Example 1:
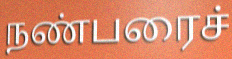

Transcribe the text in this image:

நண்பரைச்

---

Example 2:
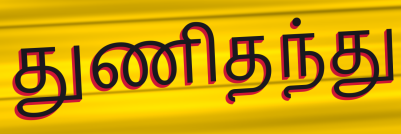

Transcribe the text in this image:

துணிதந்து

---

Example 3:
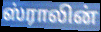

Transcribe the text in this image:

ஸ்ராலின்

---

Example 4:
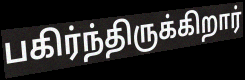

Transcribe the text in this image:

பகிர்ந்திருக்கிறார்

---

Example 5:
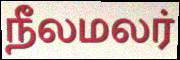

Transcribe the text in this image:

நீலமலர்